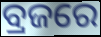
ବ୍ରଜରେ